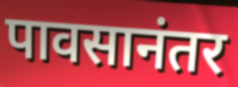
पावसानंतर